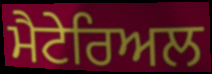
ਮੈਟੇਰਿਅਲ